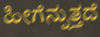
ಹೀಗೆನ್ನುತ್ತದೆ